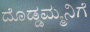
ದೊಡ್ಡಮ್ಮನಿಗೆ